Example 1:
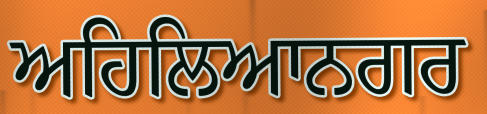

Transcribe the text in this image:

ਅਹਿਲਿਆਨਗਰ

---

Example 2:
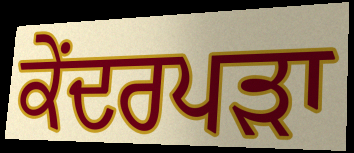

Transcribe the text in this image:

ਕੇਂਦਰਪੜਾ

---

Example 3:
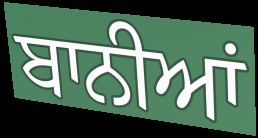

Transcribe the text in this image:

ਬਾਨੀਆਂ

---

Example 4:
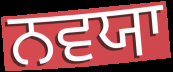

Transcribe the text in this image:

ਨਵਯਾ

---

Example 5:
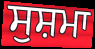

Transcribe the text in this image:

ਸੁਸ਼ਮਾ